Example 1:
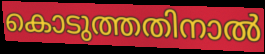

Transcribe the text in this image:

കൊടുത്തതിനാൽ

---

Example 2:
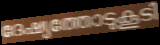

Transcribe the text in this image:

ദേഷ്യത്തോടുകൂടി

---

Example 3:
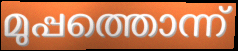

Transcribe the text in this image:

മുപ്പത്തൊന്ന്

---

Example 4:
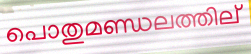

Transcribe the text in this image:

പൊതുമണ്ഡലത്തില്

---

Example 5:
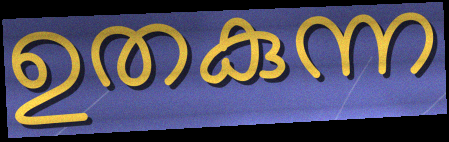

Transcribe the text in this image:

ഉതകുന്ന